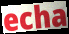
echa